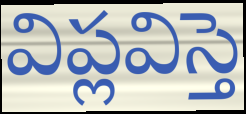
విప్లవిస్తె